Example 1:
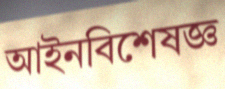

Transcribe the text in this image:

আইনবিশেষজ্ঞ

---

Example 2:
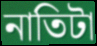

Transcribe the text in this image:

নাতিটা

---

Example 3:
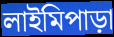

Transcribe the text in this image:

লাইমিপাড়া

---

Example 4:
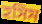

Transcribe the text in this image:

হসিম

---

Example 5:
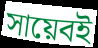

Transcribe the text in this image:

সায়েবই